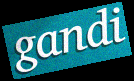
gandi